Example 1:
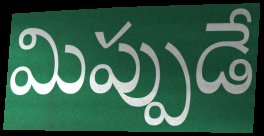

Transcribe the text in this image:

మిప్పుడే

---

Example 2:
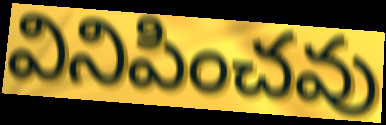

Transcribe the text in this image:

వినిపించవు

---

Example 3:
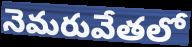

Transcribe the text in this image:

నెమరువేతలో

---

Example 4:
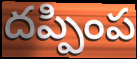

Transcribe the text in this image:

దప్పింప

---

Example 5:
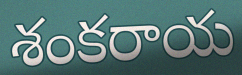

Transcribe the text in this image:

శంకరాయ